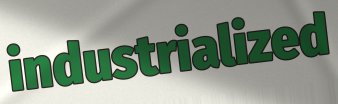
industrialized